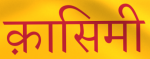
क़ासिमी